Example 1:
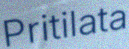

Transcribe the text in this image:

Pritilata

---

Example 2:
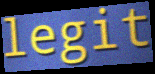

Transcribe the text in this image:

legit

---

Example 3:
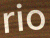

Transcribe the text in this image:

rio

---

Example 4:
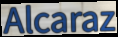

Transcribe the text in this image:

Alcaraz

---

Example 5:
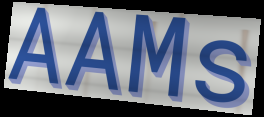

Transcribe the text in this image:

AAMs